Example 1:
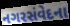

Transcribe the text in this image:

નગરસંવેદના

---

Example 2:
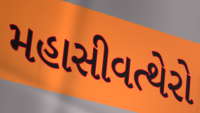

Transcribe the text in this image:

મહાસીવત્થેરો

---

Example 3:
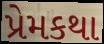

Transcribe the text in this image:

પ્રેમકથા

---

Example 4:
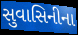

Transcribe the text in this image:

સુવાસિનીના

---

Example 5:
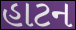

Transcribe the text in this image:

હાટન